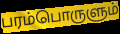
பரம்பொருளும்